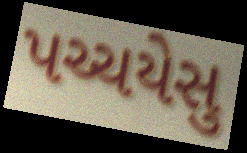
પચ્ચયેસુ